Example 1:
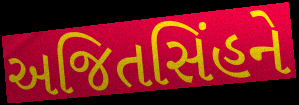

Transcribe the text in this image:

અજિતસિંહને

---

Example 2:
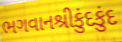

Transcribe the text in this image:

ભગવાનશ્રીકુંદકુંદ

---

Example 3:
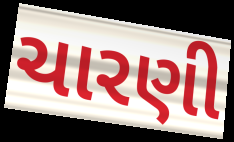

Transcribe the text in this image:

ચારણી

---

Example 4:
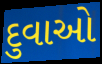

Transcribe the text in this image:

દુવાઓ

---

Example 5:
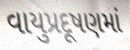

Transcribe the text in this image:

વાયુપ્રદૂષણમાં